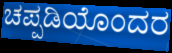
ಚಪ್ಪಡಿಯೊಂದರ